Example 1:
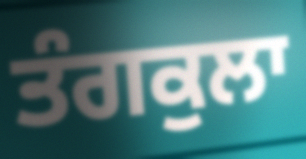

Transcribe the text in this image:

ਤੰਗਕੁਲਾ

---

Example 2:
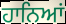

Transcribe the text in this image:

ਹਾਨਿਆਂ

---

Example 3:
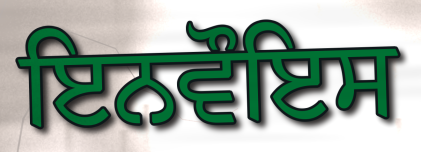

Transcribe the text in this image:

ਇਨਵੌਇਸ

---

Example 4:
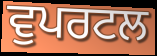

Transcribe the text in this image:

ਵੁਪਰਟਲ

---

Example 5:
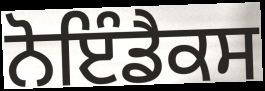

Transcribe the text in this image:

ਨੋਇੰਡੈਕਸ